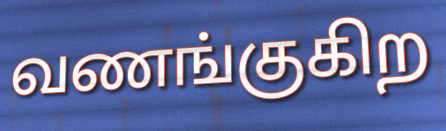
வணங்குகிற